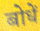
बोधें